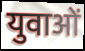
युवाओं